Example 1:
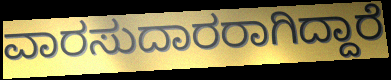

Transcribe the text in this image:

ವಾರಸುದಾರರಾಗಿದ್ದಾರೆ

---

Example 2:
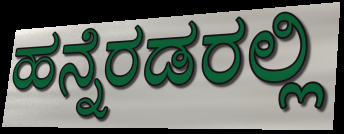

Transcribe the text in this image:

ಹನ್ನೆರಡರಲ್ಲಿ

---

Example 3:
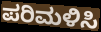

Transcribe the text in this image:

ಪರಿಮಳಿಸಿ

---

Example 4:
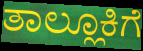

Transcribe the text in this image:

ತಾಲ್ಲೂಕಿಗೆ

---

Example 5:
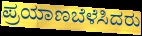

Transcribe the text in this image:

ಪ್ರಯಾಣಬೆಳೆಸಿದರು